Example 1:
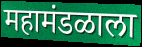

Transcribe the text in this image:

महामंडळाला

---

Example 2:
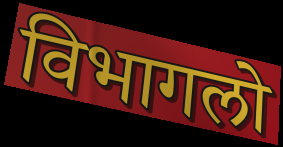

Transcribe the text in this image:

विभागलो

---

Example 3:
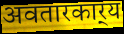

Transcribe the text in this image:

अवतारकार्य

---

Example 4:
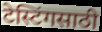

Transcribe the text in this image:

टेस्टिंगसाठी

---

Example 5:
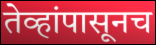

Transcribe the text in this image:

तेव्हांपासूनच